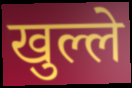
खुल्ले